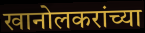
खानोलकरांच्या